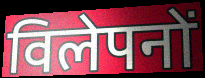
विलेपनों